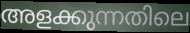
അളക്കുന്നതിലെ